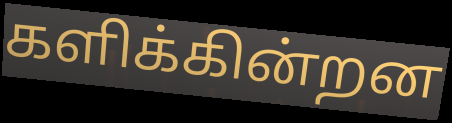
களிக்கின்றன